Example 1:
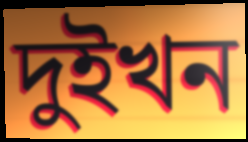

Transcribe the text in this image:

দুইখন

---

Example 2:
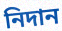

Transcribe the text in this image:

নিদান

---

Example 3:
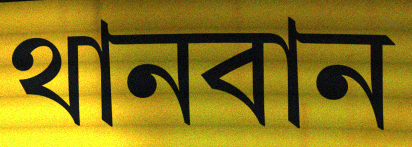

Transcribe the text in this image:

থানবান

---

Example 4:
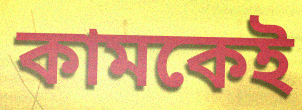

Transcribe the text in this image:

কামকেই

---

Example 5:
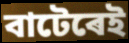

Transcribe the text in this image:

বাটেৰেই